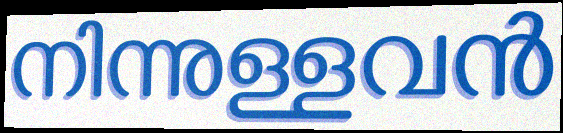
നിന്നുള്ളവൻ